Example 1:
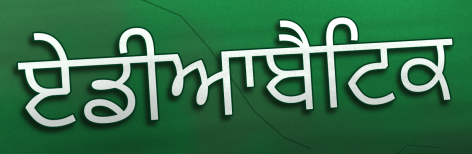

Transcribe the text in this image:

ਏਡੀਆਬੈਟਿਕ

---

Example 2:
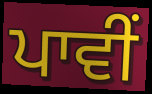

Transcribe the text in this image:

ਪਾਵੀਂ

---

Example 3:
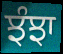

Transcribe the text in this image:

ਝੰਝਾ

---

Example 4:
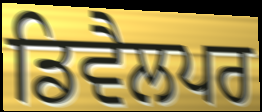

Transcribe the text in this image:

ਡਿਵੈਲਪਰ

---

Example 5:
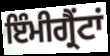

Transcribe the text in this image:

ਇੰਮੀਗ੍ਰੈਂਟਾਂ